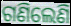
ଗଣିଲେଣି